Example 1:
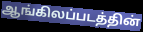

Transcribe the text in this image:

ஆங்கிலப்படத்தின்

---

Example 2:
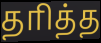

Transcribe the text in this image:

தரித்த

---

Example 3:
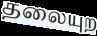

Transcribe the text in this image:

தலையுற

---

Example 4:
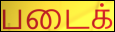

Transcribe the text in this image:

படைக்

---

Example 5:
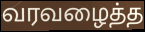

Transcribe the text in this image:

வரவழைத்த